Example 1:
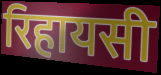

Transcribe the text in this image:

रिहायसी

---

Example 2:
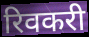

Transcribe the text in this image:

रिवकरी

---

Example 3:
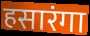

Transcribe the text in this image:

हसारंगा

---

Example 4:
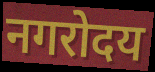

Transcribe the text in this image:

नगरोदय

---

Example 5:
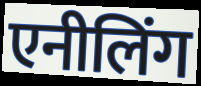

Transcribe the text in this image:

एनीलिंग